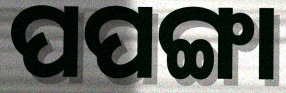
ପପଙ୍ଗା